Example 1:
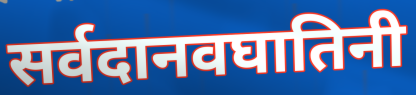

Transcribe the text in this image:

सर्वदानवघातिनी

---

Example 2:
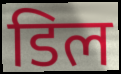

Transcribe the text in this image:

डिल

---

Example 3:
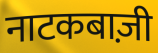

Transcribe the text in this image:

नाटकबाज़ी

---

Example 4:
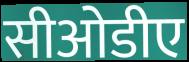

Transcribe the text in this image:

सीओडीए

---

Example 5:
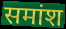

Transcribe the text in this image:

समांश